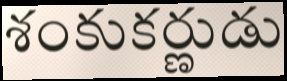
శంకుకర్ణుడు